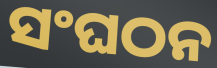
ସଂଘଠନ